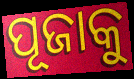
ପୂଜାକୁ